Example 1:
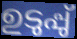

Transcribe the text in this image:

ഉടുപ്പു്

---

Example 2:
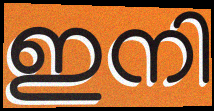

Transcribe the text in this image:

ഇനി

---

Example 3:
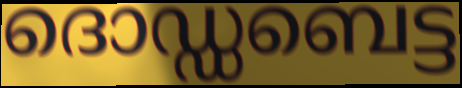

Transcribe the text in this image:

ദൊഡ്ഡബെട്ട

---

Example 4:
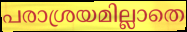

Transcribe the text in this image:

പരാശ്രയമില്ലാതെ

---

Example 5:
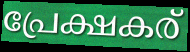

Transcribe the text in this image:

പ്രേക്ഷകര്